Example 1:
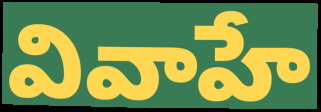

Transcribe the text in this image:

వివాహే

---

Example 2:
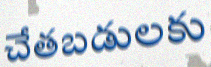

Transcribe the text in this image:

చేతబడులకు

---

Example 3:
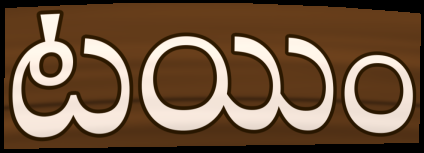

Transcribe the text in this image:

టయిం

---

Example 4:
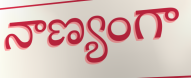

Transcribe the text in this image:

నాణ్యంగా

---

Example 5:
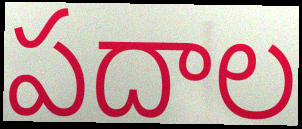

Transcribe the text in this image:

పదాల